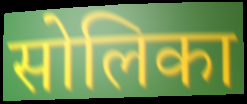
सोलिका